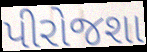
પીરોજશા